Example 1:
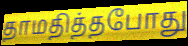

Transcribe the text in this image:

தாமதித்தபோது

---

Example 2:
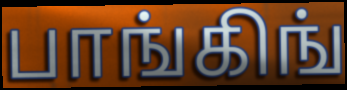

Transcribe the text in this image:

பாங்கிங்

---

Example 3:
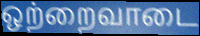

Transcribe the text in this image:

ஒற்றைவாடை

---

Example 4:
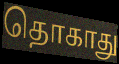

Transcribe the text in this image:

தொகாது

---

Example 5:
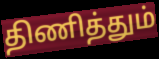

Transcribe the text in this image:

திணித்தும்